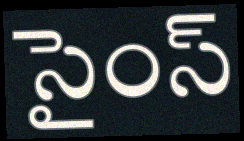
సైంస్